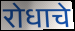
रोधाचे